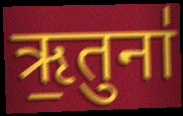
ऋ॒तुना॑